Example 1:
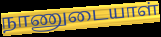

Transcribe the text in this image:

நாணுடையாள்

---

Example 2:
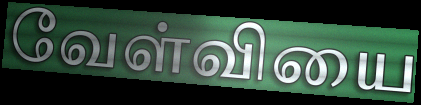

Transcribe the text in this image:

வேள்வியை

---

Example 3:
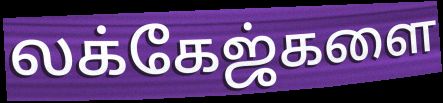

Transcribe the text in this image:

லக்கேஜ்களை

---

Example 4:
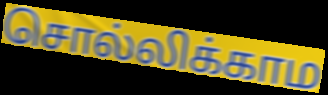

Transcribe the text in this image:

சொல்லிக்காம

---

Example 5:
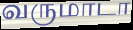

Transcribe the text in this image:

வருமாடா